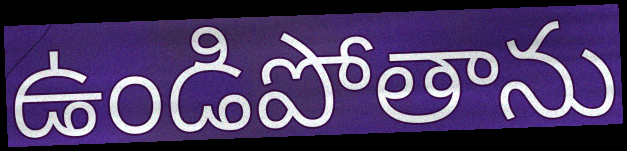
ఉండిపోతాను